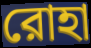
রোহা